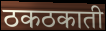
ठकठकाती